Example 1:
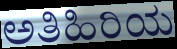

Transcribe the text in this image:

ಅತಿಹಿರಿಯ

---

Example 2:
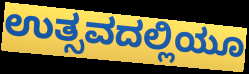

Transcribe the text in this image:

ಉತ್ಸವದಲ್ಲಿಯೂ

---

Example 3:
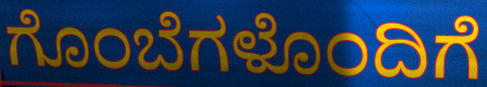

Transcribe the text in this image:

ಗೊಂಬೆಗಳೊಂದಿಗೆ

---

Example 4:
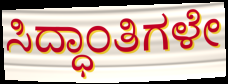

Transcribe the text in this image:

ಸಿದ್ಧಾಂತಿಗಳೇ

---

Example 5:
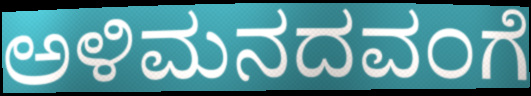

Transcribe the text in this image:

ಅಳಿಮನದವಂಗೆ